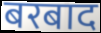
बरबाद